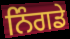
ਨਿੰਗਡੇ